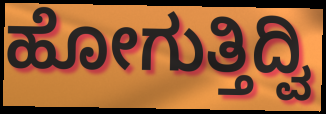
ಹೋಗುತ್ತಿದ್ವಿ